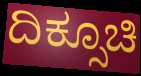
ದಿಕ್ಸೂಚಿ